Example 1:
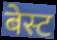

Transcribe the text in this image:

बेस्ट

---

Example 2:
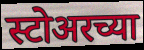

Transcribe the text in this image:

स्टोअरच्या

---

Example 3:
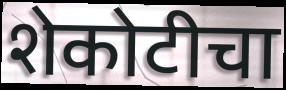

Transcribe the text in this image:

शेकोटीचा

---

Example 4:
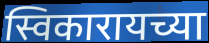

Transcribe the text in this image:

स्विकारायच्या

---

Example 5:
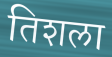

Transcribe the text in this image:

तिशला